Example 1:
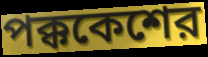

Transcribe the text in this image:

পক্ককেশের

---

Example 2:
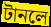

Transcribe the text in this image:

টানলে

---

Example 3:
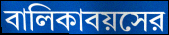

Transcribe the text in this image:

বালিকাবয়সের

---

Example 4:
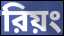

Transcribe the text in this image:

রিয়ং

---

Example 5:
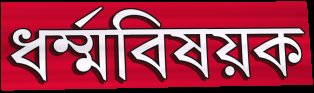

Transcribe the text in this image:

ধর্ম্মবিষয়ক